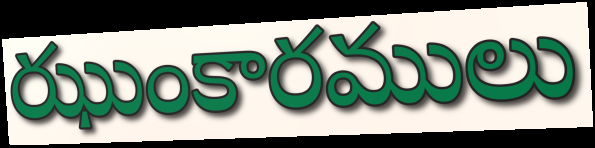
ఝుంకారములు